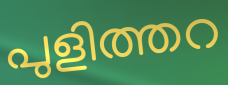
പുളിത്തറ